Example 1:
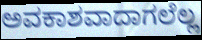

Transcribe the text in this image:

ಅವಕಾಶವಾದಾಗಲೆಲ್ಲ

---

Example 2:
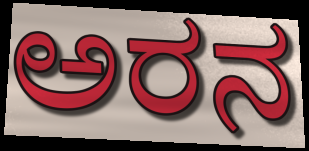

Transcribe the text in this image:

ಅರನ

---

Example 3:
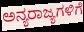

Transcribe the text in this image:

ಅನ್ಯರಾಜ್ಯಗಳಿಗೆ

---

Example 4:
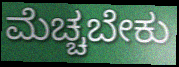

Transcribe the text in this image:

ಮೆಚ್ಚಬೇಕು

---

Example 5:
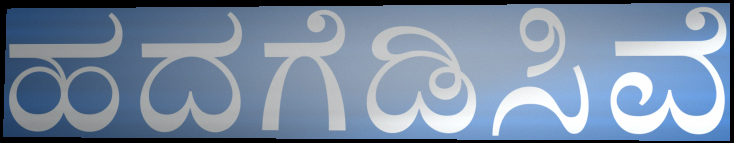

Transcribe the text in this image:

ಹದಗೆಡಿಸಿವೆ